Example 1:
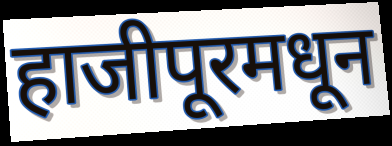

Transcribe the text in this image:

हाजीपूरमधून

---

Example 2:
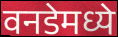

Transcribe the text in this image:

वनडेमध्ये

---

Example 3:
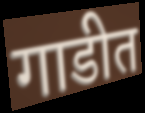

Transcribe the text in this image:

गाडीत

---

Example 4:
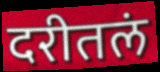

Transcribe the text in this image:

दरीतलं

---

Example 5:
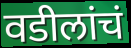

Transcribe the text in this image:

वडीलांचं